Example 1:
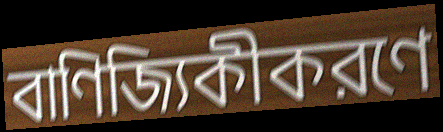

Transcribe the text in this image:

বাণিজ্যিকীকরণে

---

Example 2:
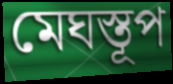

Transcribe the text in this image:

মেঘস্তূপ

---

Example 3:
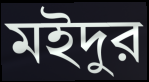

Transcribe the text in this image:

মইদুর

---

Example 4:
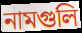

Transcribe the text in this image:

নামগুলি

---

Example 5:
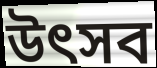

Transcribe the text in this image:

উত্‍সব